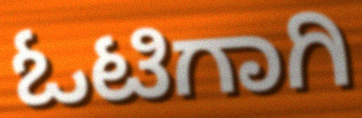
ಓಟಿಗಾಗಿ